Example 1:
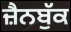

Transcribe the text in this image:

ਜ਼ੈਨਬੁੱਕ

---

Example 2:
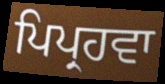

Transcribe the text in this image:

ਪਿਪ੍ਰਹਵਾ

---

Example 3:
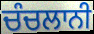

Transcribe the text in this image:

ਚੰਚਲਾਨੀ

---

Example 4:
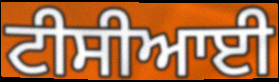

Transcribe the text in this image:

ਟੀਸੀਆਈ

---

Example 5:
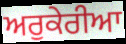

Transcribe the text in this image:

ਅਰੁਕੇਰੀਆ